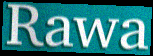
Rawa